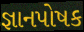
જ્ઞાનપોષક